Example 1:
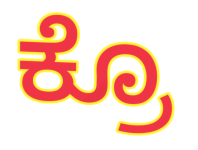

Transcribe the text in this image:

ಕ್ರೊ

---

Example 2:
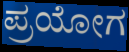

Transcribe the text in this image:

ಪ್ರಯೋಗ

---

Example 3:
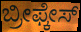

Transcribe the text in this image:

ಬ್ರೀಫ್ಕೇಸ್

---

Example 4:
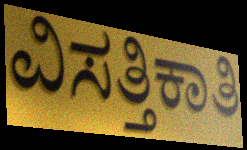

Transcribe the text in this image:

ವಿಸತ್ತಿಕಾತಿ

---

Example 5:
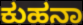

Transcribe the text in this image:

ಕುಹನಾ